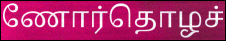
ணோர்தொழச்